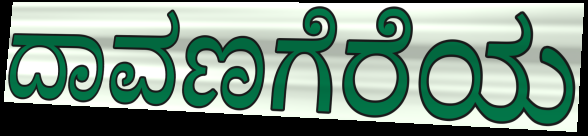
ದಾವಣಗೆರೆಯ